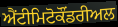
ਐਂਟੀਮਿਟੋਕੌਂਡਰੀਅਲ